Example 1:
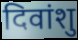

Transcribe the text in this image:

दिवांशु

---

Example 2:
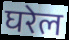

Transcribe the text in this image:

घरेल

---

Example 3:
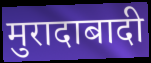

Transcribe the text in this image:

मुरादाबादी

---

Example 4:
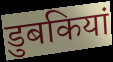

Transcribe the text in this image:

डुबकियां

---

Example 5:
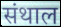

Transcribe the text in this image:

संथाल